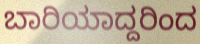
ಬಾರಿಯಾದ್ದರಿಂದ